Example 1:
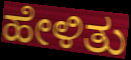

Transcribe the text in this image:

ಹೇಳಿತು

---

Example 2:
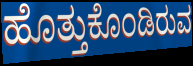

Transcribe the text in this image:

ಹೊತ್ತುಕೊಂಡಿರುವ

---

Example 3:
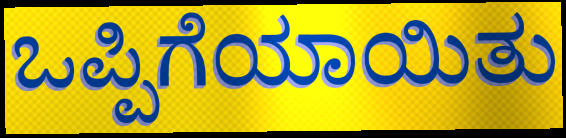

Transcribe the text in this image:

ಒಪ್ಪಿಗೆಯಾಯಿತು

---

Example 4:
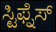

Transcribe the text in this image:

ಸ್ಟಿಫ್ನೆಸ್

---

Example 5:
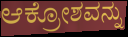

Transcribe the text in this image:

ಆಕ್ರೋಶವನ್ನು